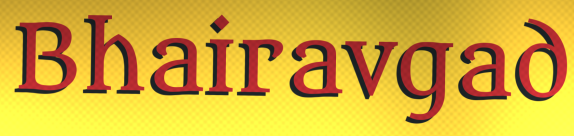
Bhairavgad